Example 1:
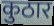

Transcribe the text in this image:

कुठार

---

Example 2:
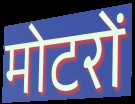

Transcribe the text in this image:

मोटरों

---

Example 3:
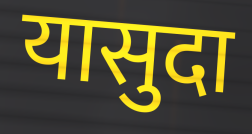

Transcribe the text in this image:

यासुदा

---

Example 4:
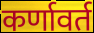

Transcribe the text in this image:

कर्णावर्त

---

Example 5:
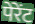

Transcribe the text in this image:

पेरेंट